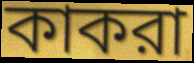
কাকরা